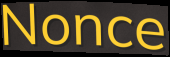
Nonce